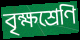
বৃক্ষশ্রেণি